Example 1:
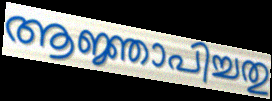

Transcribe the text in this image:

ആജ്ഞാപിച്ചതു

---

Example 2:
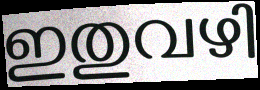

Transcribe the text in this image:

ഇതുവഴി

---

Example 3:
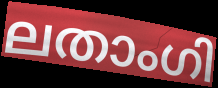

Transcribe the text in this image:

ലതാംഗി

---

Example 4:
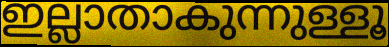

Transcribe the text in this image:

ഇല്ലാതാകുന്നുള്ളൂ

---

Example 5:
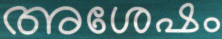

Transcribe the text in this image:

അശേഷം